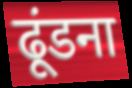
ढूंडना